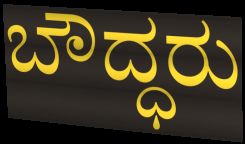
ಬೌದ್ಧರು